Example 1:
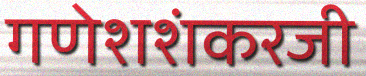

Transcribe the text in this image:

गणेशशंकरजी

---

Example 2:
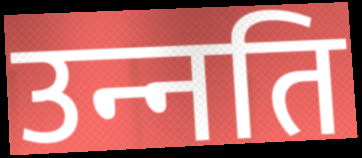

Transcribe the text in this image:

उन्नति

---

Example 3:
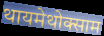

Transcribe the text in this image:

थायमेथोक्साम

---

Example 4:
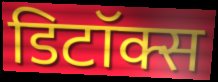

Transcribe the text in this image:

डिटॉक्स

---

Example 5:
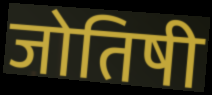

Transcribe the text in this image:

जोतिषी